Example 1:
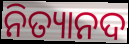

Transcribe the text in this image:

ନିତ୍ୟାନଦ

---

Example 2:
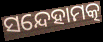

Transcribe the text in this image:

ସନ୍ଦେହାମତ୍କ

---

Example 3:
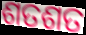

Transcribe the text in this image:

ଶତଶତ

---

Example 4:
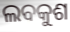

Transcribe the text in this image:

ଲବକୁଶ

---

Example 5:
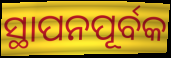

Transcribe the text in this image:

ସ୍ଥାପନପୂର୍ବକ